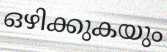
ഒഴിക്കുകയും